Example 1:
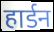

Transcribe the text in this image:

हार्डन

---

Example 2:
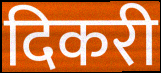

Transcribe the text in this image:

दिकरी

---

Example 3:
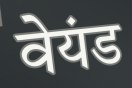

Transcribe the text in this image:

वेयंड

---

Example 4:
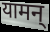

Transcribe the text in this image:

यामन्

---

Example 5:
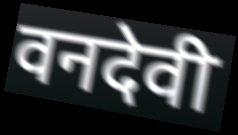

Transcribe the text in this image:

वनदेवी